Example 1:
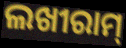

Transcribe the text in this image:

ଲଖୀରାମ୍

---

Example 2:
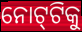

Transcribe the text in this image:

ନୋଟ୍‌ଟିକୁ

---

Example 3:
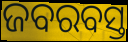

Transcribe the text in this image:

ଜବରବସ୍ତ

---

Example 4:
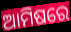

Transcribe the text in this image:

ଆମିଷରେ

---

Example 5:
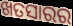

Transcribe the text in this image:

ଖତସାରର